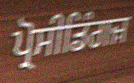
ਪ੍ਰੋਸੀਡਿੰਗਜ਼